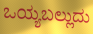
ಒಯ್ಯಬಲ್ಲುದು